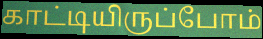
காட்டியிருப்போம்